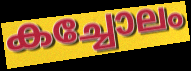
കച്ചോലം